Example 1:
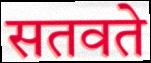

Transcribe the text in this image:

सतवते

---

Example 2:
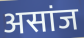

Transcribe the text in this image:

असांज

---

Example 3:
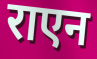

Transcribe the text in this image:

राएन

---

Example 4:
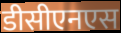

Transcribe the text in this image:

डीसीएनएस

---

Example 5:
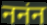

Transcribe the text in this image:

ननंन